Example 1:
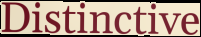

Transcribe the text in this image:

Distinctive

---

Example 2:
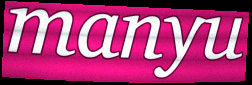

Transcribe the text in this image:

manyu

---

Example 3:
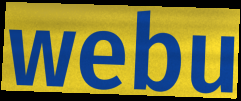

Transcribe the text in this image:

webu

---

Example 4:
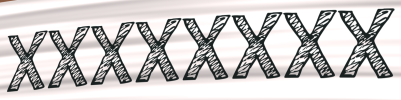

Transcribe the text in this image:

XXXXXXXX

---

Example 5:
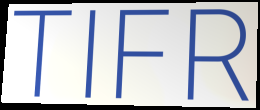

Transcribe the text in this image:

TIFR